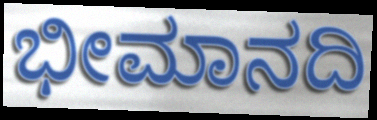
ಭೀಮಾನದಿ